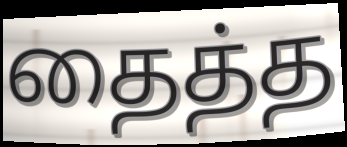
தைத்த